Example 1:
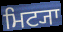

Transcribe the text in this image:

ਮਿਟ੍ਯਾ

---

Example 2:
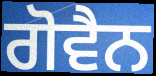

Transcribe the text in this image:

ਗੋਵੈਨ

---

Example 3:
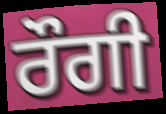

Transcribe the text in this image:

ਰੌਗੀ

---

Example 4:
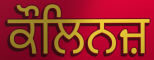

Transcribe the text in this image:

ਕੌਲਿਨਜ਼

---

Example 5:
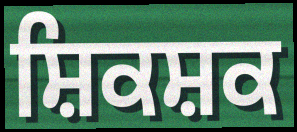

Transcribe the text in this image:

ਸ਼ਿਕਸ਼ਕ